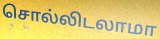
சொல்லிடலாமா